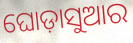
ଘୋଡ଼ାସୁଆର